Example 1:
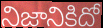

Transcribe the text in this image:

నిజానికిదో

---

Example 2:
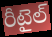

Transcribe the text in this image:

రీటైల్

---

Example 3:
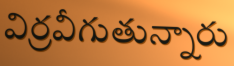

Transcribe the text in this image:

విర్రవీగుతున్నారు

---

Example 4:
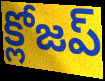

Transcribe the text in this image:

క్లోజప్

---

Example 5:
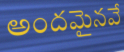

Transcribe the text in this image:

అందమైనవే